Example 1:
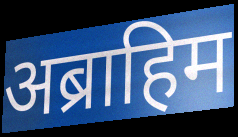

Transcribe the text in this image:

अब्राहिम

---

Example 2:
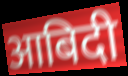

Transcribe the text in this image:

आबिदी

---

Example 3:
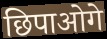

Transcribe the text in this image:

छिपाओगे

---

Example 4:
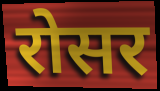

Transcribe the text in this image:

रोसर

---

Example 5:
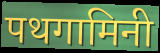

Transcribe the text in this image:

पथगामिनी